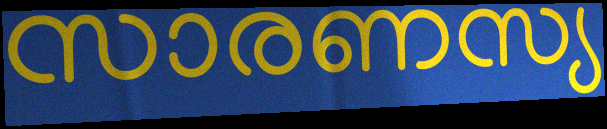
സാരണസ്യ